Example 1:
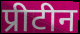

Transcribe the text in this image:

प्रीटीन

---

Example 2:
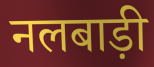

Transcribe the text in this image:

नलबाड़ी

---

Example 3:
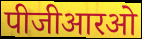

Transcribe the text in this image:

पीजीआरओ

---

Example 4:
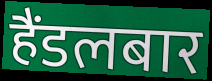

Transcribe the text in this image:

हैंडलबार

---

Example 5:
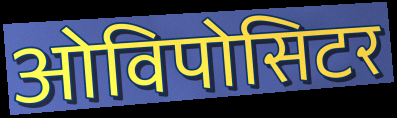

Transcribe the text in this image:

ओविपोसिटर